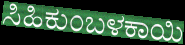
ಸಿಹಿಕುಂಬಳಕಾಯಿ